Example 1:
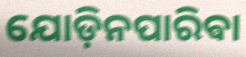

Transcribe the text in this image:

ଯୋଡ଼ିନପାରିଵା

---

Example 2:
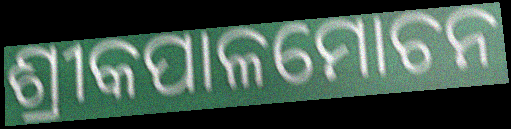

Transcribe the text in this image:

ଶ୍ରୀକପାଳମୋଚନ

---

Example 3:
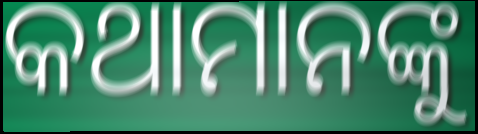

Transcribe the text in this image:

କଥାମାନଙ୍କୁ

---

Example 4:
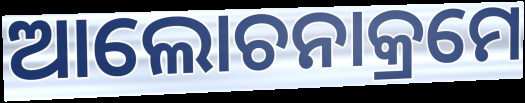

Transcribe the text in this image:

ଆଲୋଚନାକ୍ରମେ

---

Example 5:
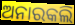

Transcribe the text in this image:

ଅନାରକଲି